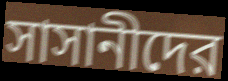
সাসানীদের